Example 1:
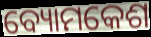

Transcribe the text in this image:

ବ୍ୟୋମକେଶ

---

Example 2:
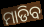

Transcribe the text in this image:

ମାଡିବ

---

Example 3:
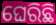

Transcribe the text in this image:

ଘେରିଛି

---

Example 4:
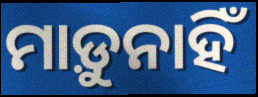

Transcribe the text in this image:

ମାଡ଼ୁନାହିଁ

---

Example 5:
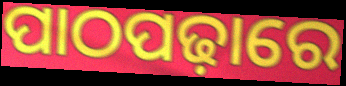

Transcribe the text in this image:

ପାଠପଢ଼ାରେ